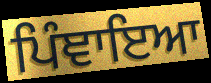
ਪਿੰਞਾਇਆ